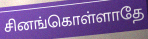
சினங்கொள்ளாதே